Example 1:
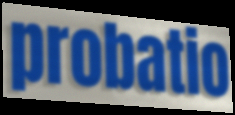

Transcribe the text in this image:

probatio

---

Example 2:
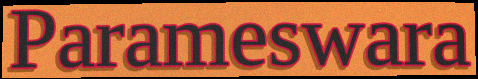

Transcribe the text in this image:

Parameswara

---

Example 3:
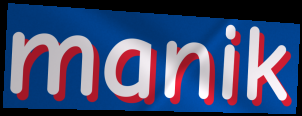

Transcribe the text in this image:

manik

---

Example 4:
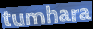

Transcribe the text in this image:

tumhara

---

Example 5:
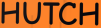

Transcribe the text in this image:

HUTCH